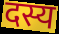
दस्य